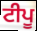
ਟੀਪੂ